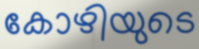
കോഴിയുടെ